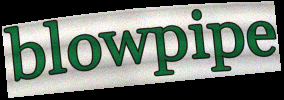
blowpipe